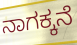
ನಾಗಕ್ಕನೆ